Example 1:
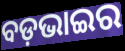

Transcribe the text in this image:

ବଡ଼ଭାଇର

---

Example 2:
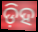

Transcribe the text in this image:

ଡ଼ିହ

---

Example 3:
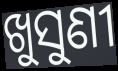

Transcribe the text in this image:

ଖୁସୁଣୀ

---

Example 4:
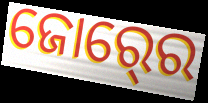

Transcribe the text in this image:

ଜୋର୍‍ରେ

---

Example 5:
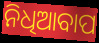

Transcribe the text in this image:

ନିଧିଆବାପ